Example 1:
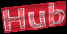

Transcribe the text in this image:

Hub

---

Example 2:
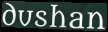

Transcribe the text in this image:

dushan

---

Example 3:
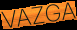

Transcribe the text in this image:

VAZGA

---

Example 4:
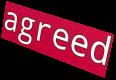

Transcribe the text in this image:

agreed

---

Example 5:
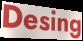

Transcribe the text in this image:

Desing